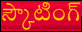
స్కౌటింగ్